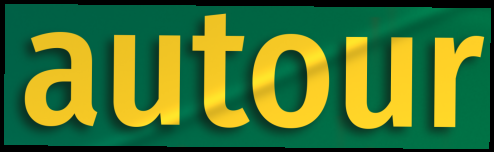
autour